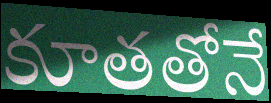
కూతతోనే